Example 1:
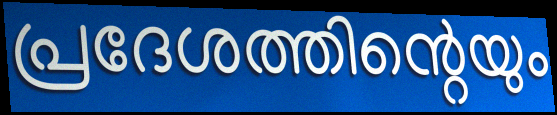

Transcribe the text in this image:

പ്രദേശത്തിന്റെയും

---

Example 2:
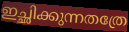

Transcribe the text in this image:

ഇച്ഛിക്കുന്നതത്രേ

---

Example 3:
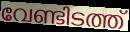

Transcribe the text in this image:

വേണ്ടിടത്ത്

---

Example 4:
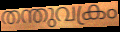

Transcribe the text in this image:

തന്തുവക്രം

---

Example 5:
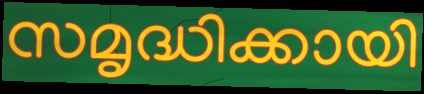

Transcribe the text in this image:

സമൃദ്ധിക്കായി